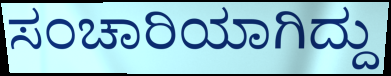
ಸಂಚಾರಿಯಾಗಿದ್ದು